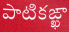
పాటికఙ్ఖా